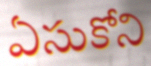
ఏసుకోని